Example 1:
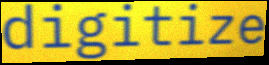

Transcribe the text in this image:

digitize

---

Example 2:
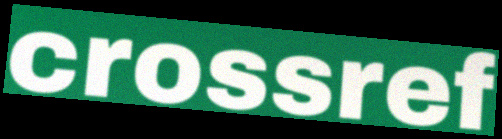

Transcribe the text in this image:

crossref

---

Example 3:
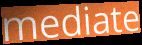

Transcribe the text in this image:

mediate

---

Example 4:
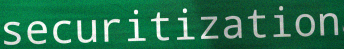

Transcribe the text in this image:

securitization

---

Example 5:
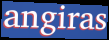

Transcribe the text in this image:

angiras